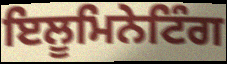
ਇਲੂਮਿਨੇਟਿੰਗ